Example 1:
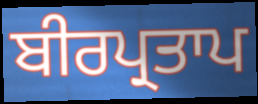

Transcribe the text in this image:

ਬੀਰਪ੍ਰਤਾਪ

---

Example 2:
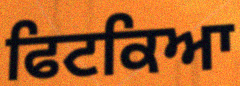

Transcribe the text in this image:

ਫਿਟਕਿਆ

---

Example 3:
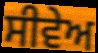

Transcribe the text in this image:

ਸੀਵੇਅ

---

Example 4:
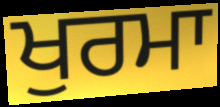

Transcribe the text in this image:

ਖੁਰਮਾ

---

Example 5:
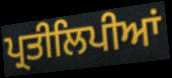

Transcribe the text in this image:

ਪ੍ਰਤੀਲਿਪੀਆਂ